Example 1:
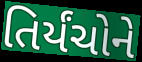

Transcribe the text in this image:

તિર્યંચોને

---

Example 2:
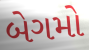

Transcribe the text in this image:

બેગમો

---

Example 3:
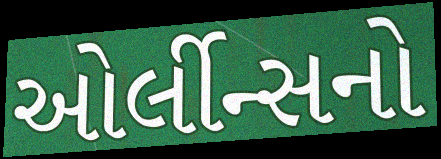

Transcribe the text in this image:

ઓર્લીન્સનો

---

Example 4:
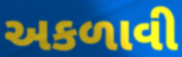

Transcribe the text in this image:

અકળાવી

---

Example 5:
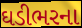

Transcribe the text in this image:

ઘડીભરના